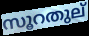
സൂറതുല്